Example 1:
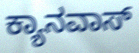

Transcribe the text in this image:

ಕ್ಯಾನವಾಸ್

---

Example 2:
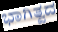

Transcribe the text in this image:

ಭಾಗಿತ್ವದ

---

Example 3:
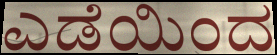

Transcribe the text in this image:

ಎಡೆಯಿಂದ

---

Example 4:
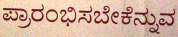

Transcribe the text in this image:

ಪ್ರಾರಂಭಿಸಬೇಕೆನ್ನುವ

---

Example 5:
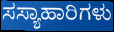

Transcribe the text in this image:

ಸಸ್ಯಾಹಾರಿಗಳು